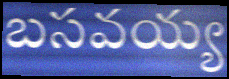
బసవయ్య